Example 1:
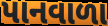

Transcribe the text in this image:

પાનવાળા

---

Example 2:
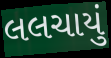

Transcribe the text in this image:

લલચાયું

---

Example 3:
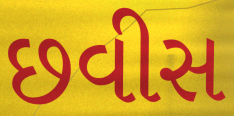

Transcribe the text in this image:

છવીસ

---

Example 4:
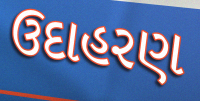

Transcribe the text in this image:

ઉદાહરણ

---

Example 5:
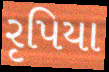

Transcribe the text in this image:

રૃપિયા